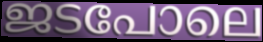
ജടപോലെ